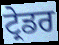
ਟ੍ਰੇਡਰ